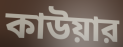
কাউয়ার